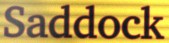
Saddock